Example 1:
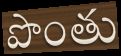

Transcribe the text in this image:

పొంతు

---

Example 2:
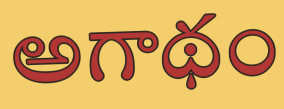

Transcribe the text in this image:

అగాథం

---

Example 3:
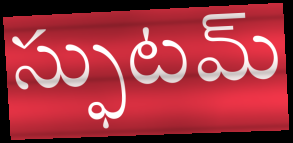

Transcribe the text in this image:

స్ఫుటమ్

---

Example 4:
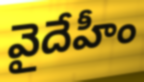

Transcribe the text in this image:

వైదేహీం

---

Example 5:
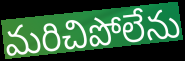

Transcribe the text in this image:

మరిచిపోలేను